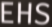
EHS